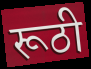
रूठी